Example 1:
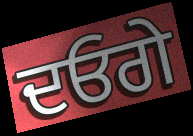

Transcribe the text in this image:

ਦਓਗੇ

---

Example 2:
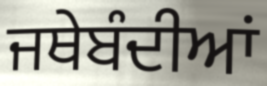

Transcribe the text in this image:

ਜਥੇਬੰਦੀਆਂ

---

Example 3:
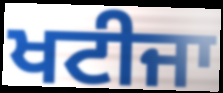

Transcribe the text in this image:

ਖਟੀਜਾ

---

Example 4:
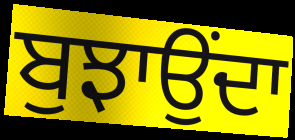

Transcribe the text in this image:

ਬੁਝਾਉਂਦਾ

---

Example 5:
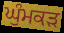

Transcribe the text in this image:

ਘੁੰਮਕੜ